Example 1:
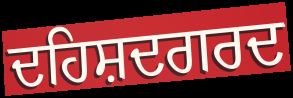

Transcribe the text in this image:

ਦਹਿਸ਼ਦਗਰਦ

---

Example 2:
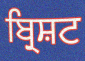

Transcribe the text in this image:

ਬ੍ਰਿਸ਼ਟ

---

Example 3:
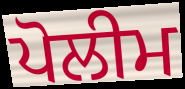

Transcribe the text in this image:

ਪੋਲੀਮ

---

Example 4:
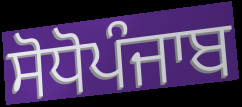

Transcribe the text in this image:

ਸੋਧੋਪੰਜਾਬ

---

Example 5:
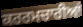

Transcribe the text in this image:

ਕਰਰਮਚਾਰੀਆਂ